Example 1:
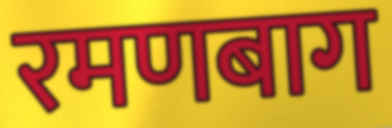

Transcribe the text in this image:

रमणबाग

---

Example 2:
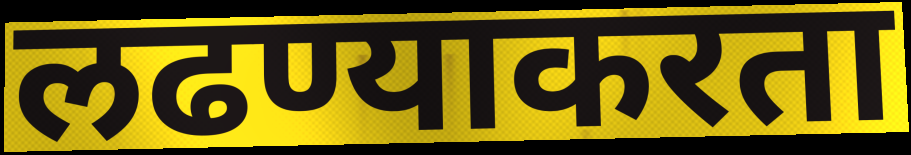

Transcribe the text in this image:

लढण्याकरता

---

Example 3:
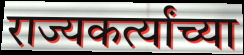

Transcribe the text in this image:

राज्यकर्त्यांच्या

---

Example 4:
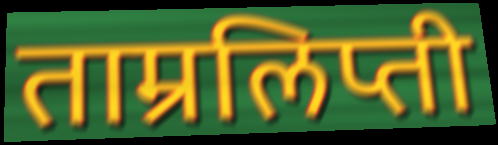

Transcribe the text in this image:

ताम्रलिप्ती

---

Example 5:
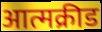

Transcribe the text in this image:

आत्मक्रीड